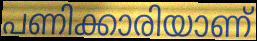
പണിക്കാരിയാണ്